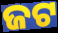
ଜଟ